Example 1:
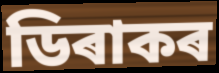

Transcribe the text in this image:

ডিৰাকৰ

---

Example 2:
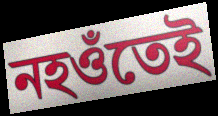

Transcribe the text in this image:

নহওঁতেই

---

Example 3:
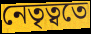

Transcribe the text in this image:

নেতৃত্বতে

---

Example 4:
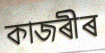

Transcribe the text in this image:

কাজৰীৰ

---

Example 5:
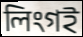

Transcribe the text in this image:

লিংগই